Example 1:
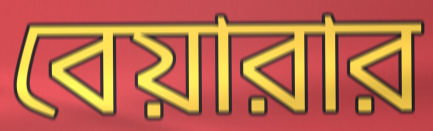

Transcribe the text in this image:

বেয়ারার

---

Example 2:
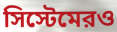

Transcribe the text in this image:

সিস্টেমেরও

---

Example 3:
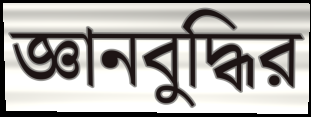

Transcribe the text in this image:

জ্ঞানবুদ্ধির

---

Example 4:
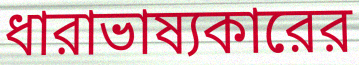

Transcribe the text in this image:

ধারাভাষ্যকারের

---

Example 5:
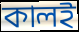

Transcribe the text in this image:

কালই